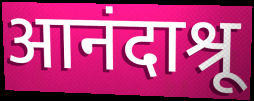
आनंदाश्रू